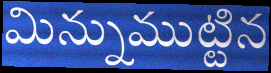
మిన్నుముట్టిన